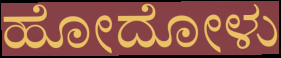
ಹೋದೋಳು